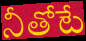
నీతోటే